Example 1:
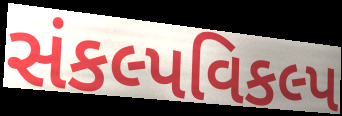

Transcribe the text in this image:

સંકલ્પવિકલ્પ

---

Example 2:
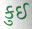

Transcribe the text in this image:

કુઈ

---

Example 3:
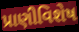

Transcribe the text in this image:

પ્રાણીવિશેષ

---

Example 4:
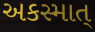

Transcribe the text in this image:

અકસ્માત્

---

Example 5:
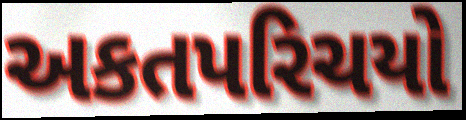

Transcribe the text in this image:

અકતપરિચયો